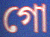
গো